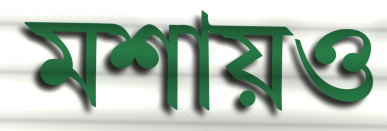
মশায়ও